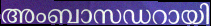
അംബാസഡറായി